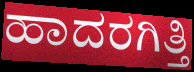
ಹಾದರಗಿತ್ತಿ